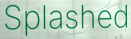
Splashed